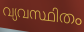
വ്യവസ്ഥിതം